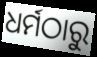
ଧର୍ମଠାରୁ